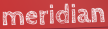
meridian